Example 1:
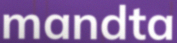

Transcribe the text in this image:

mandta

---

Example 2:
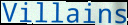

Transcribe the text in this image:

Villains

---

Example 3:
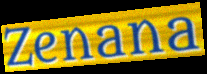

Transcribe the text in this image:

Zenana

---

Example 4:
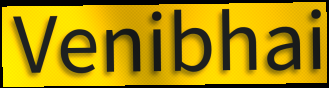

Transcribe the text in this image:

Venibhai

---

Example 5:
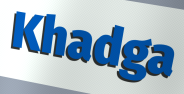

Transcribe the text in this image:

Khadga